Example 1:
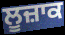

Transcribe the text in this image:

ਲੂਜ਼ਾਕ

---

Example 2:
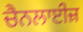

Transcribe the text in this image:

ਚੈਨਲਾਈਜ਼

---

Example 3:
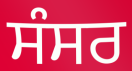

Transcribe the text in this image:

ਸੰਸਰ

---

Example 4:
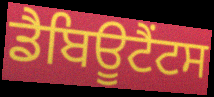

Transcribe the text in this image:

ਡੈਬਿਊਟੈਂਟਸ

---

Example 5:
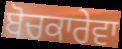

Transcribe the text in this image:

ਬੋਚਕਾਰੇਵਾ